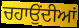
ਚਹਾਉਂਦੀਆਂ